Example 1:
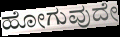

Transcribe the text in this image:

ಹೋಗುವುದೇ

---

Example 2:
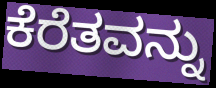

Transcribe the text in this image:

ಕೆರೆತವನ್ನು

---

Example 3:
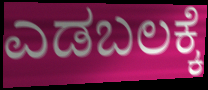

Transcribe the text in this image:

ಎಡಬಲಕ್ಕೆ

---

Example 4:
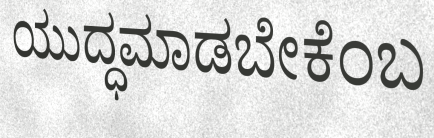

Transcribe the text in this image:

ಯುದ್ಧಮಾಡಬೇಕೆಂಬ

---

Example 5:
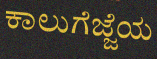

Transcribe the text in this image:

ಕಾಲುಗೆಜ್ಜೆಯ